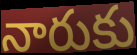
నారుకు